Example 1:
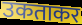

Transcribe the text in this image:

उकताकर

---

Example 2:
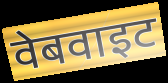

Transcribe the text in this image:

वेबवाइट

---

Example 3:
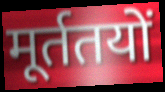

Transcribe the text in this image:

मूर्ततयों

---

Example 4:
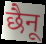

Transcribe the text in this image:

छैनू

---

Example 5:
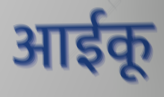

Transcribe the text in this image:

आईकू